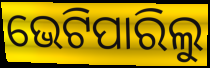
ଭେଟିପାରିଲୁ